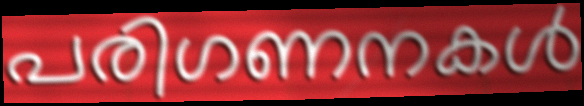
പരിഗണനകൾ